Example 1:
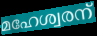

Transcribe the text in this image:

മഹേശ്വരന്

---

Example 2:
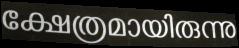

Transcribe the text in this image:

ക്ഷേത്രമായിരുന്നു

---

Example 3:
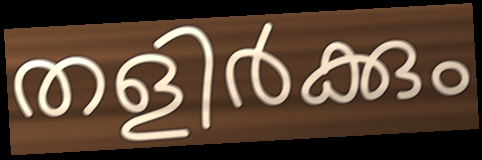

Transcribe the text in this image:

തളിർക്കും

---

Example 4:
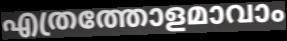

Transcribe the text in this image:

എത്രത്തോളമാവാം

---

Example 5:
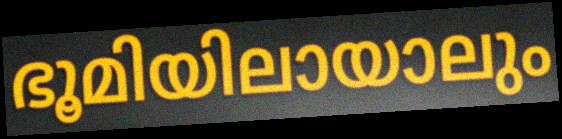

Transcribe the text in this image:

ഭൂമിയിലായാലും